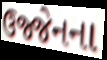
ઉજ્જેનના